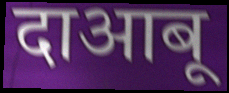
दाआबू